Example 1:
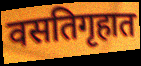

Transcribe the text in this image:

वसतिगृहात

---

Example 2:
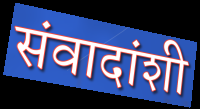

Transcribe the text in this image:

संवादांशी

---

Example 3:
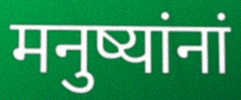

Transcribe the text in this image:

मनुष्यांनां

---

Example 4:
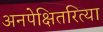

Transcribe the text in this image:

अनपेक्षितरित्या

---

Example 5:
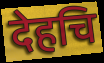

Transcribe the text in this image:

देहचि